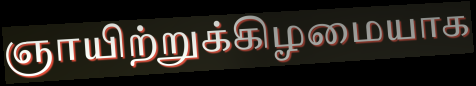
ஞாயிற்றுக்கிழமையாக